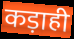
कड़ाही